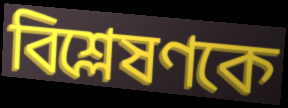
বিশ্লেষণকে